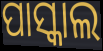
ପାସ୍କାଲ